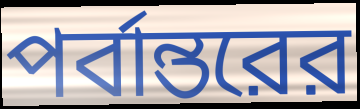
পর্বান্তরের